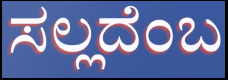
ಸಲ್ಲದೆಂಬ